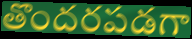
తొందరపడగా